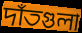
দাঁতগুলা